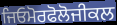
ਜਿਓਮੋਰਫੋਲੋਜੀਕਲ